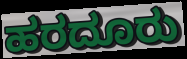
ಹರದೂರು